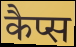
कैप्स